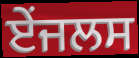
ਏਂਜਲਸ